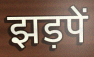
झड़पें